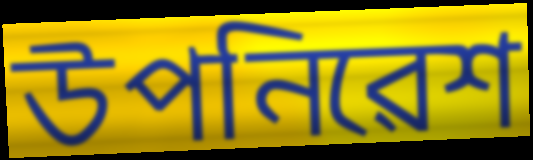
উপনিৱেশ